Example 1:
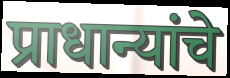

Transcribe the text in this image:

प्राधान्यांचे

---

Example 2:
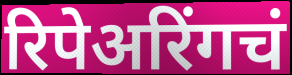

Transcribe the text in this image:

रिपेअरिंगचं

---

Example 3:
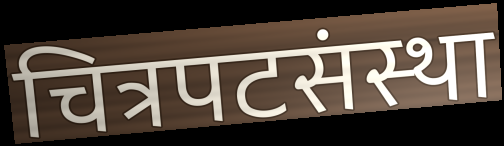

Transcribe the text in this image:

चित्रपटसंस्था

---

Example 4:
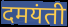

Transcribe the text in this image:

दमयंती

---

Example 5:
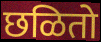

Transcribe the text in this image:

छळितो